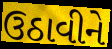
ઉઠાવીને